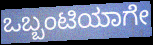
ಒಬ್ಬಂಟಿಯಾಗೇ